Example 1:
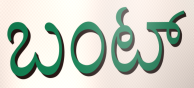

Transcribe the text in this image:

ಬಂಟ್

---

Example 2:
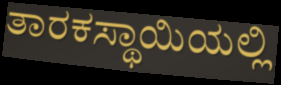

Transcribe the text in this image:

ತಾರಕಸ್ಥಾಯಿಯಲ್ಲಿ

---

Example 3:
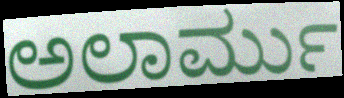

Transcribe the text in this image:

ಅಲಾರ್ಮು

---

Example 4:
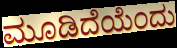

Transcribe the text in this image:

ಮೂಡಿದೆಯೆಂದು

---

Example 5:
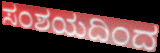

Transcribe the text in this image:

ಸಂಶಯದಿಂದ